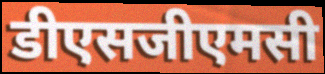
डीएसजीएमसी